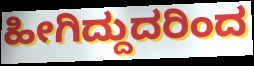
ಹೀಗಿದ್ದುದರಿಂದ